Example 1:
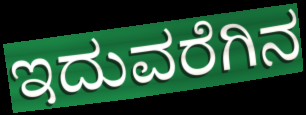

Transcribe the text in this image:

ಇದುವರೆಗಿನ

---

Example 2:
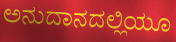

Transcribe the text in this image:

ಅನುದಾನದಲ್ಲಿಯೂ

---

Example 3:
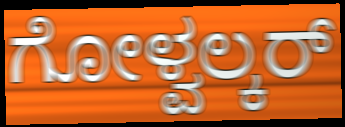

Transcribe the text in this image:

ಗೋಳ್ವಲ್ಕರ್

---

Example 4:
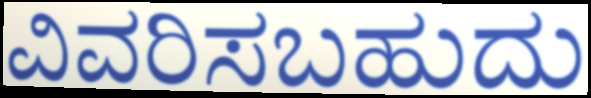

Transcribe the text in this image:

ವಿವರಿಸಬಹುದು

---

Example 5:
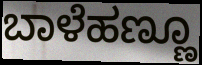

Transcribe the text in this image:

ಬಾಳೆಹಣ್ಣೂ